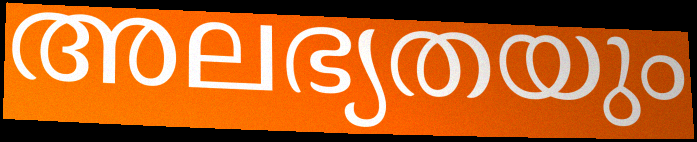
അലഭ്യതയും